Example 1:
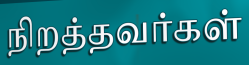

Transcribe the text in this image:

நிறத்தவர்கள்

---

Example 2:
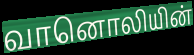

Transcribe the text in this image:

வானொலியின்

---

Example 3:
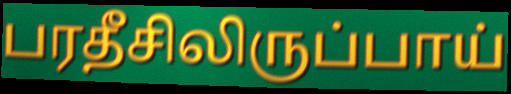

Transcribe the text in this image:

பரதீசிலிருப்பாய்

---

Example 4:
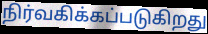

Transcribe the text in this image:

நிர்வகிக்கப்படுகிறது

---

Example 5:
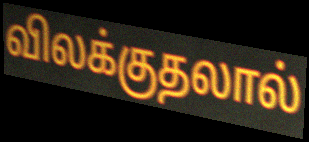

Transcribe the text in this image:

விலக்குதலால்